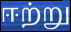
ஈற்று